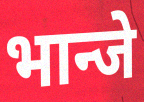
भान्जे